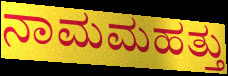
ನಾಮಮಹತ್ತು